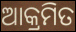
ଆକ୍ରମିତ